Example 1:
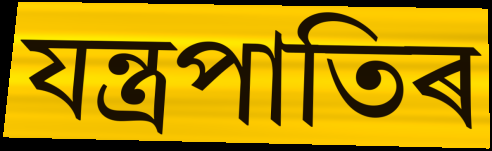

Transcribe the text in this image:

যন্ত্ৰপাতিৰ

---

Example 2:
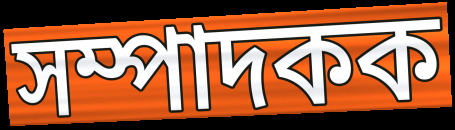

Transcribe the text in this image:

সম্পাদকক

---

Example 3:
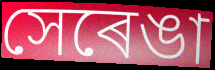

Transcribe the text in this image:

সেৰেঙা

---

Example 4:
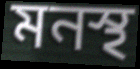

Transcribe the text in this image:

মনস্থ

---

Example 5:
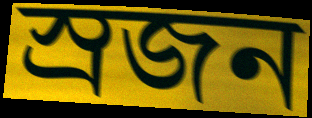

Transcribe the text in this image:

স্ৰজন